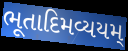
ભૂતાદિમવ્યયમ્